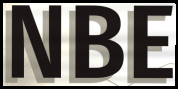
NBE